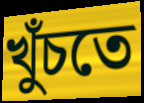
খুঁচতে